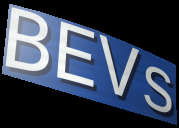
BEVs